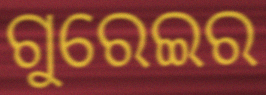
ଗୁରେଇର